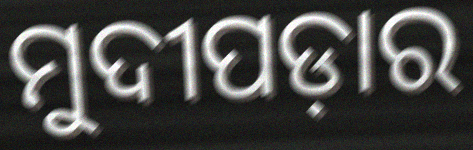
ମୁଦୀପଡ଼ାର